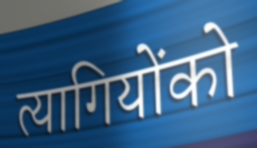
त्यागियोंको